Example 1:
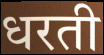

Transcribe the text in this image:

धरती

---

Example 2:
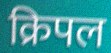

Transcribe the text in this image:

क्रिपल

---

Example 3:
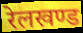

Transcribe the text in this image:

रेलखण्ड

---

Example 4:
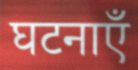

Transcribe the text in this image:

घटनाएँ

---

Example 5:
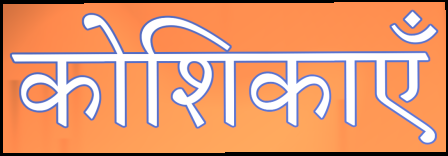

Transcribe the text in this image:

कोशिकाएँ